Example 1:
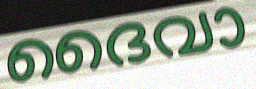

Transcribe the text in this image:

ദൈവാ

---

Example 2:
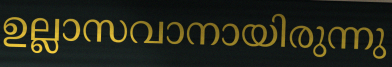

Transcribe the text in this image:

ഉല്ലാസവാനായിരുന്നു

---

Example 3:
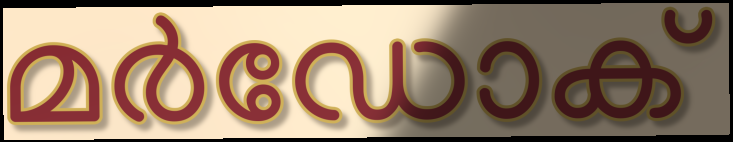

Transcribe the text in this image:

മർഡോക്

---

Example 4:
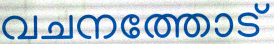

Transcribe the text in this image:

വചനത്തോട്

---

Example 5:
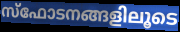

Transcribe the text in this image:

സ്ഫോടനങ്ങളിലൂടെ